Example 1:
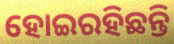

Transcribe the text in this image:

ହୋଇରହିଛନ୍ତି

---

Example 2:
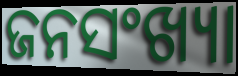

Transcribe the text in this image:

ଜନସଂଖ୍ଯା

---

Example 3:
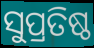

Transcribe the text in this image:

ସୁପ୍ରତିଷ୍ଠ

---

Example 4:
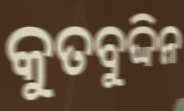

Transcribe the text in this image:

କୁତବୁଦ୍ଦିନ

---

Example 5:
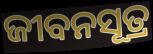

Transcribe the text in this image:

ଜୀବନସୂତ୍ର